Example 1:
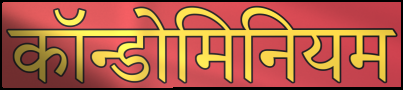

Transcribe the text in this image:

कॉन्डोमिनियम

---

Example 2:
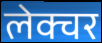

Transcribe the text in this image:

लेक्चर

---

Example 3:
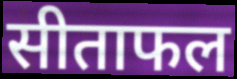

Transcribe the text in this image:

सीताफल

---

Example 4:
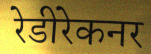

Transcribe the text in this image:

रेडीरेकनर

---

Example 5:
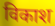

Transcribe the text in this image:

विकाश